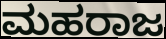
ಮಹರಾಜ